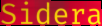
Sidera